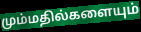
மும்மதில்களையும்